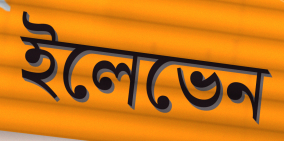
ইলেভেন